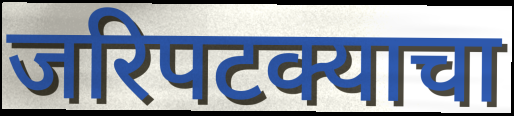
जरिपटक्याचा